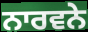
ਨਾਰਵਨੇ